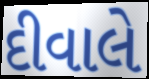
દીવાલે